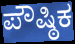
ಪೌಷ್ಠಿಕ